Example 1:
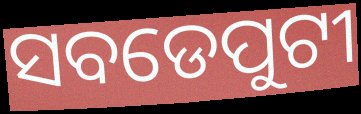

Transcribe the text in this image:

ସବଡେପୁଟୀ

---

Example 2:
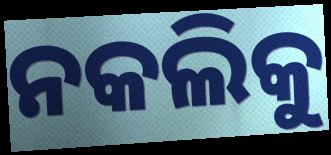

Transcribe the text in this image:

ନକଲିକୁ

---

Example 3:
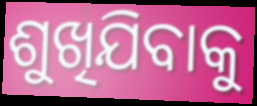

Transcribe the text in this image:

ଶୁଖିଯିବାକୁ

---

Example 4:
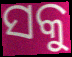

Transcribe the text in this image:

ସକୁ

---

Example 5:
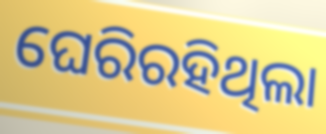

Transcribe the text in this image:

ଘେରିରହିଥିଲା